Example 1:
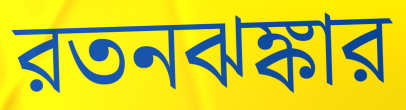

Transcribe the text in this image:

রতনঝঙ্কার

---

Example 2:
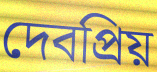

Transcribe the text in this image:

দেবপ্রিয়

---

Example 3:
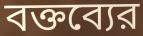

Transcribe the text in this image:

বক্তব্যের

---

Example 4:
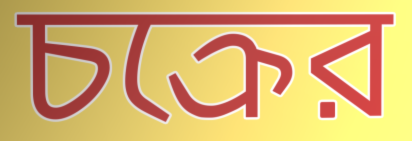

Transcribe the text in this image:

চক্রের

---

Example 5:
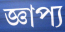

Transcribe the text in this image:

জ্ঞাপ্য